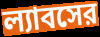
ল্যাবসের